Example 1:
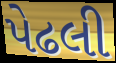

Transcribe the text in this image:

પેઢલી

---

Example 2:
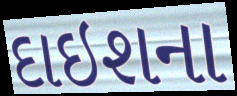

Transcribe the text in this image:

દાઇશના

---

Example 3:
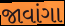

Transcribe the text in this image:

જાવાંગા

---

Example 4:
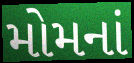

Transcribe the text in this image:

મોમનાં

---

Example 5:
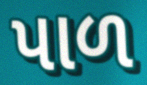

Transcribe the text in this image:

પાળ